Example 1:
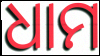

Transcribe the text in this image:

ଧାମ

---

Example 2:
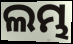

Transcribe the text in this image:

ଲମ୍ଭ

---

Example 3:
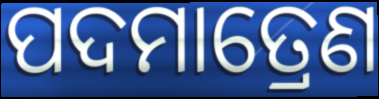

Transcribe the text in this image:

ପଦମାତ୍ରେଣ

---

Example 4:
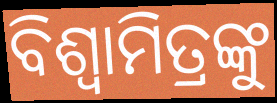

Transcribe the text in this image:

ବିଶ୍ଵାମିତ୍ରଙ୍କୁ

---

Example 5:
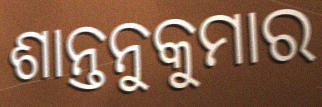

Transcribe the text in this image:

ଶାନ୍ତନୁକୁମାର